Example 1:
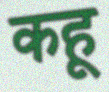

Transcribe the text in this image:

कहू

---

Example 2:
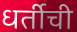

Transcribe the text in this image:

धर्तीची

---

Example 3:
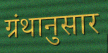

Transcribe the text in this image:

ग्रंथानुसार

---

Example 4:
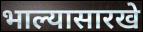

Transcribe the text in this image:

भाल्यासारखे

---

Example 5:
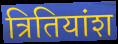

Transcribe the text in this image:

त्रितियांश